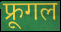
फ्रूगल